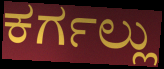
ಕರ್ಗಲ್ಲು